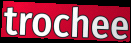
trochee